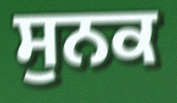
ਸੁਨਕ